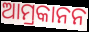
ଆମ୍ରକାନନ